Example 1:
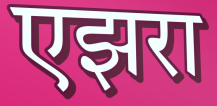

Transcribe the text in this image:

एझरा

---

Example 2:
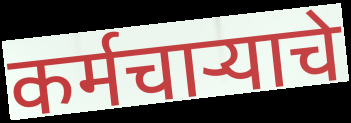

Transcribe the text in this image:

कर्मचाऱ्याचे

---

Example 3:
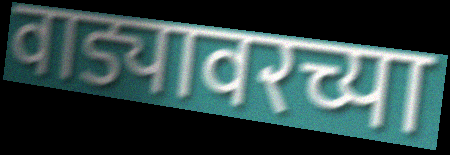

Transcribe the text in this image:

वाड्यावरच्या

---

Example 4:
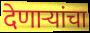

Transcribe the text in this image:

देणाऱ्यांचा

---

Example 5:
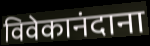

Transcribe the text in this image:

विवेकानंदाना